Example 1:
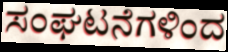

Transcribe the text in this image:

ಸಂಘಟನೆಗಳಿಂದ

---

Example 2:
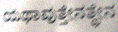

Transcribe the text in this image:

ಯಥಾವುತ್ತೇನತ್ಥೇನ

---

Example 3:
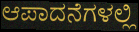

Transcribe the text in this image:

ಆಪಾದನೆಗಳಲ್ಲಿ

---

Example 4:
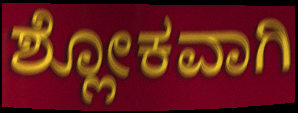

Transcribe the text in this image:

ಶ್ಲೋಕವಾಗಿ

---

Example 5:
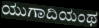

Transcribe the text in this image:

ಯುಗಾದಿಯಂಥ